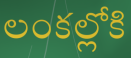
లంకల్లోకి